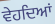
ਵੇਹਦਿਆਂ